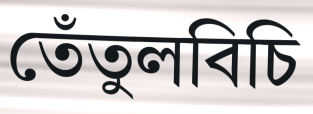
তেঁতুলবিচি